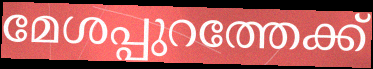
മേശപ്പുറത്തേക്ക്